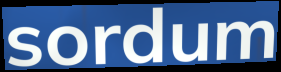
sordum